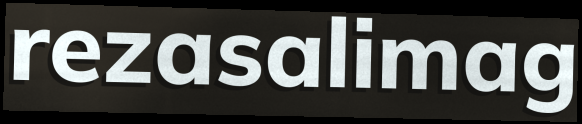
rezasalimag